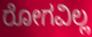
ರೋಗವಿಲ್ಲ